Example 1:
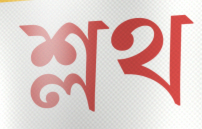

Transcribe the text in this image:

শ্লথ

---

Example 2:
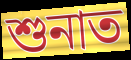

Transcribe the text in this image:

শুনাত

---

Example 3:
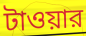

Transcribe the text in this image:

টাওয়ার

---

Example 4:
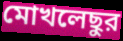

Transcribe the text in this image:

মোখলেছুর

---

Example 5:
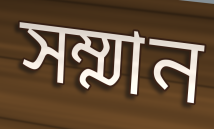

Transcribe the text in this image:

সম্মান